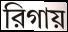
রিগায়